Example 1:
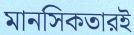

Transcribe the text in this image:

মানসিকতারই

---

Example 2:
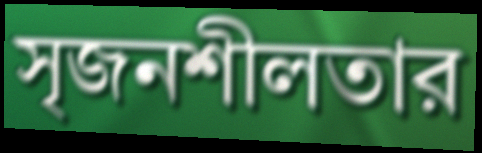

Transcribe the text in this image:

সৃজনশীলতার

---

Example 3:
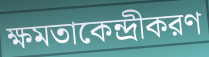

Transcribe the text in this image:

ক্ষমতাকেন্দ্রীকরণ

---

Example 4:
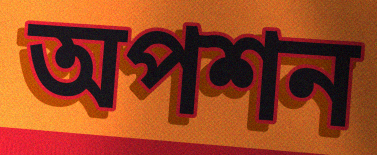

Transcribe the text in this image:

অপশন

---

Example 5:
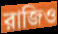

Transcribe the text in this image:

রাজিও